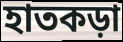
হাতকড়া